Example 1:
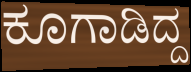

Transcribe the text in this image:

ಕೂಗಾಡಿದ್ದ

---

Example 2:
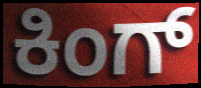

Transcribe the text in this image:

ಕಿಂಗ್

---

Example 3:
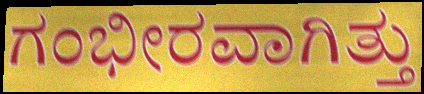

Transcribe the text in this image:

ಗಂಭೀರವಾಗಿತ್ತು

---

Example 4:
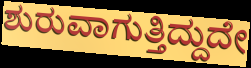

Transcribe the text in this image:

ಶುರುವಾಗುತ್ತಿದ್ದುದೇ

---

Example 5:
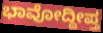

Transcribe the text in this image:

ಭಾವೋದ್ದೀಪ್ತ